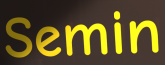
Semin